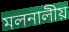
মলনালীয়